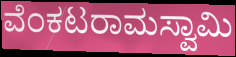
ವೆಂಕಟರಾಮಸ್ವಾಮಿ